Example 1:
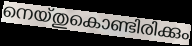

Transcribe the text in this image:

നെയ്തുകൊണ്ടിരിക്കും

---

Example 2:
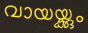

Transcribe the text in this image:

വായയ്ക്കും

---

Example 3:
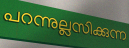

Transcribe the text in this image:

പറന്നുല്ലസിക്കുന്ന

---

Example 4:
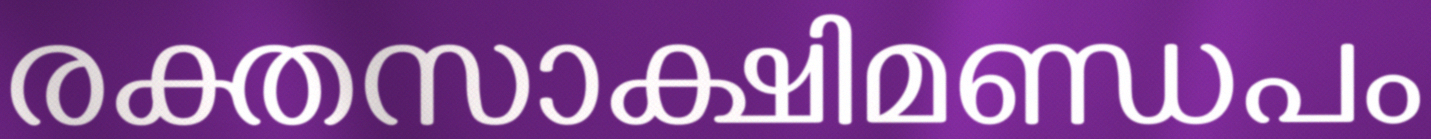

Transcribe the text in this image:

രക്തസാക്ഷിമണ്ഡപം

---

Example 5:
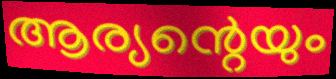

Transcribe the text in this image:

ആര്യന്റെയും